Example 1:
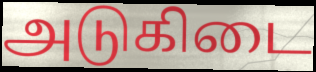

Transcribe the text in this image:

அடுகிடை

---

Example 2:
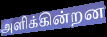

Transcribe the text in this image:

அளிக்கின்றன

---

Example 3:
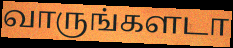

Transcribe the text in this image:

வாருங்களடா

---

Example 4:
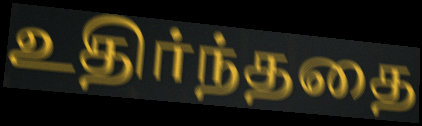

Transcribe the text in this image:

உதிர்ந்ததை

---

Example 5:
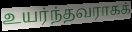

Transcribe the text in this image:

உயர்ந்தவராகக்